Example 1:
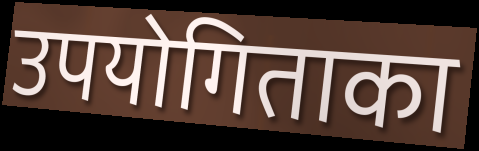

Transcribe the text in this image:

उपयोगिताका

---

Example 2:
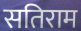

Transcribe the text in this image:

सतिराम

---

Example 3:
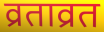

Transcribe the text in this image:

व्रताव्रत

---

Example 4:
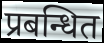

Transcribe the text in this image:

प्रबन्धित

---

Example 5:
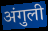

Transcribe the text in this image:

अंगुली